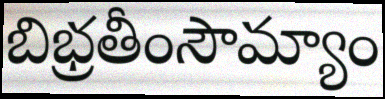
బిభ్రతీంసౌమ్యాం